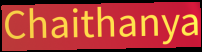
Chaithanya